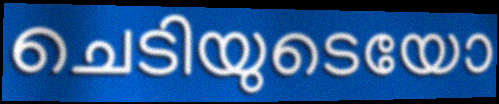
ചെടിയുടെയോ